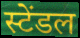
स्टेंडल